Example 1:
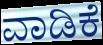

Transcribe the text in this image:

ವಾಡಿಕೆ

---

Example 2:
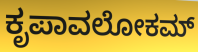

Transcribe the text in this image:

ಕೃಪಾವಲೋಕಮ್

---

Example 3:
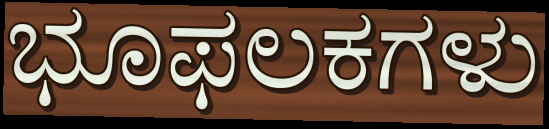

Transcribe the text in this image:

ಭೂಫಲಕಗಳು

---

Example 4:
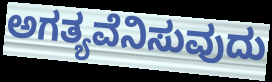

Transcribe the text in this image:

ಅಗತ್ಯವೆನಿಸುವುದು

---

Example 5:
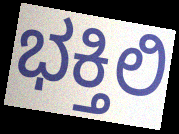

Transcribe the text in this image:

ಭಕ್ತಿಲಿ